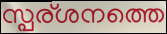
സ്പര്ശനത്തെ